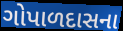
ગોપાળદાસના